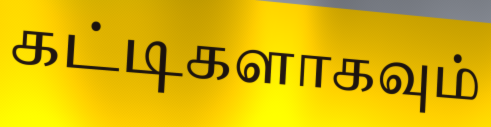
கட்டிகளாகவும்